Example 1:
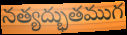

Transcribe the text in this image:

నత్యద్భుతముగ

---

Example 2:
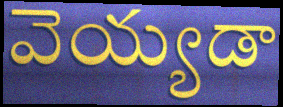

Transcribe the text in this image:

వెయ్యడా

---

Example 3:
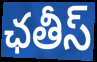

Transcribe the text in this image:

ఛతీస్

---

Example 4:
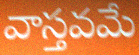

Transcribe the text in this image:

వాస్తవమే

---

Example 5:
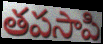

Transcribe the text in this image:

తపసాపి